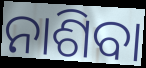
ନାଶିବା